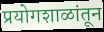
प्रयोगशाळांतून